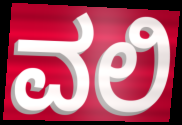
ವಲಿ